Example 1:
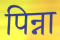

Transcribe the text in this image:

पिन्ना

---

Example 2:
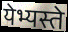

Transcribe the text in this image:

येभ्यस्ते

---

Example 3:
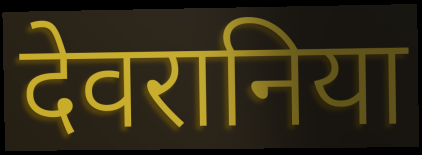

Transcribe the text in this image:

देवरानिया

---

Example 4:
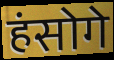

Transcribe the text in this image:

हंसोगे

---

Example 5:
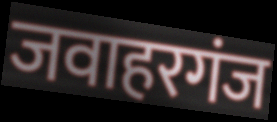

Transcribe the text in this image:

जवाहरगंज